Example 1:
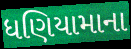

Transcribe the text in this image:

ધણિયામાના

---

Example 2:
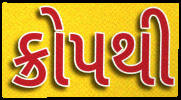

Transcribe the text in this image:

ક્રોપથી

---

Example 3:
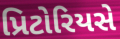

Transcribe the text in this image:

પ્રિટોરિયસે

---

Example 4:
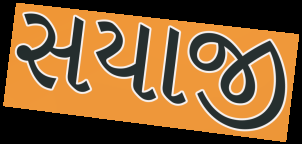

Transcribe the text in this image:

સયાજી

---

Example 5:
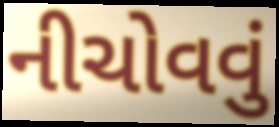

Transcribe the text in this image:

નીચોવવું